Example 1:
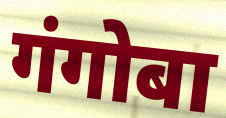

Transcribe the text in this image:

गंगोबा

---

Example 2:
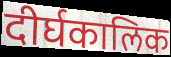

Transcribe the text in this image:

दीर्घकालिक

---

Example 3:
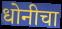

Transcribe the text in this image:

धोनीचा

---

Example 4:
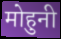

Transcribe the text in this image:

मोहुनी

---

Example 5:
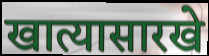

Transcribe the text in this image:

खात्यासारखे